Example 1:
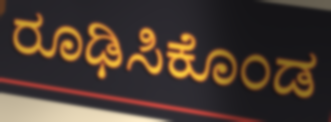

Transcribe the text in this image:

ರೂಢಿಸಿಕೊಂಡ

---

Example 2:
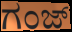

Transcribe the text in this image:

ಗಂಜ್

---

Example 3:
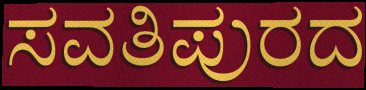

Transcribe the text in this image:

ಸವತಿಪುರದ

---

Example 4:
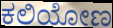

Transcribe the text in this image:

ಕಲಿಯೋಣ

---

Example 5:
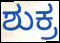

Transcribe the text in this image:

ಶುಕ್ರ